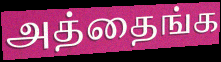
அத்தைங்க